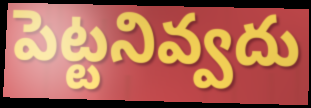
పెట్టనివ్వదు